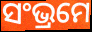
ସଂଭ୍ରମେ